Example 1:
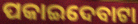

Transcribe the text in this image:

ପକାଇଦେବାଟା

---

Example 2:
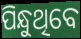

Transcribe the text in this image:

ପିନ୍ଧୁଥିବେ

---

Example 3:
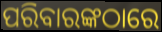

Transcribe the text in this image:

ପରିବାରଙ୍କଠାରେ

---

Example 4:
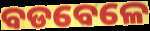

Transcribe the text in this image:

ବଡବେଳେ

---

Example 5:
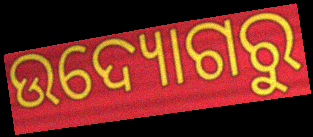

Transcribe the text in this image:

ଉଦ୍ୟୋଗରୁ